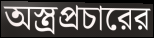
অস্ত্রপ্রচারের